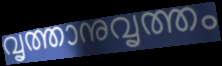
വൃത്താനുവൃത്തം